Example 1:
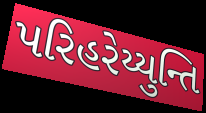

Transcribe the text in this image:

પરિહરેય્યુન્તિ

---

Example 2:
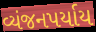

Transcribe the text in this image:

વ્યંજનપર્યાય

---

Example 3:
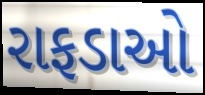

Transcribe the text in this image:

રાફડાઓ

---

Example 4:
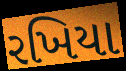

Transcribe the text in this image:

રખિયા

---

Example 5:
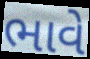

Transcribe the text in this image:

ભાવે